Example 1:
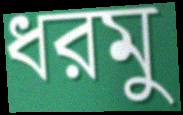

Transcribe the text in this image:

ধরমু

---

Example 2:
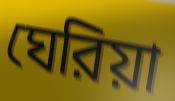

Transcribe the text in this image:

ঘেরিয়া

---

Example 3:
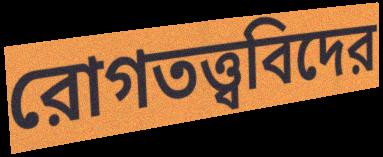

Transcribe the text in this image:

রোগতত্ত্ববিদের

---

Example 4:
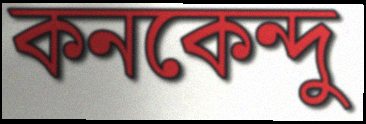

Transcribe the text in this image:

কনকেন্দু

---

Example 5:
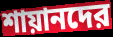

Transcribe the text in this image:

শায়ানদের